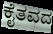
ಕೈತವದ